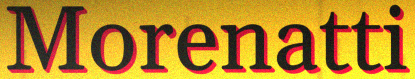
Morenatti